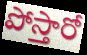
పోస్తారో